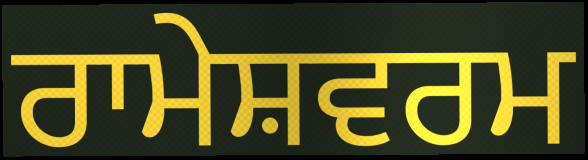
ਰਾਮੇਸ਼ਵਰਮ